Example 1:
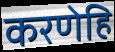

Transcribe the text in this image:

करणेहि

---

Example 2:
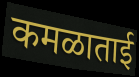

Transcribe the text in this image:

कमळाताई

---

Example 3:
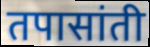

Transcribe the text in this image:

तपासांती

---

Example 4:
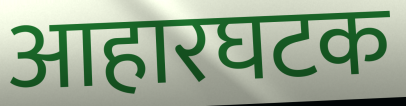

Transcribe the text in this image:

आहारघटक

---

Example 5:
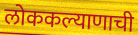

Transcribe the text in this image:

लोककल्याणाची